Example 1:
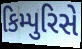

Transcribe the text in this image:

કિમ્પુરિસે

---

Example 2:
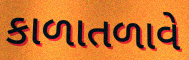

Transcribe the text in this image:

કાળાતળાવે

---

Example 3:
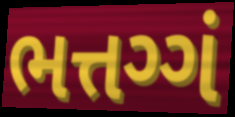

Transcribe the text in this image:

ભત્તગ્ગં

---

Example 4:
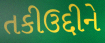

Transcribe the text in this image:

તકીઉદ્દીને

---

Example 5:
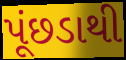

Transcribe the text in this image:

પૂંછડાથી